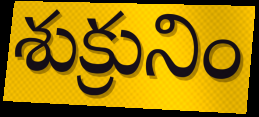
శుక్రునిం